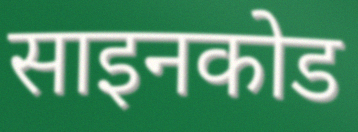
साइनकोड